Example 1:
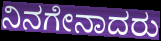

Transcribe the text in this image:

ನಿನಗೇನಾದರು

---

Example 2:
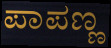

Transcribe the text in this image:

ಪಾಪಣ್ಣ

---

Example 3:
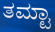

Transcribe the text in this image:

ತಮ್ಟಾ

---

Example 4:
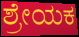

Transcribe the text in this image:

ಶ್ರೇಯಕ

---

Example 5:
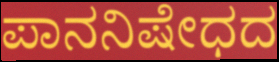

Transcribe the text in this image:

ಪಾನನಿಷೇಧದ